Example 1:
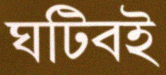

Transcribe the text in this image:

ঘটিবই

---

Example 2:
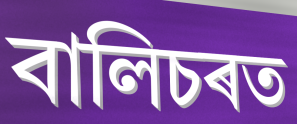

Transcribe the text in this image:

বালিচৰত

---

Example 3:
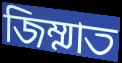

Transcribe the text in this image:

জিম্মাত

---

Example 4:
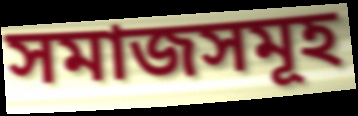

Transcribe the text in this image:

সমাজসমূহ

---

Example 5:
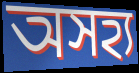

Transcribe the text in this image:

অসহ্য